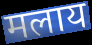
मलाय